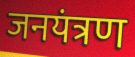
जनयंत्रण